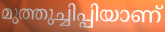
മുത്തുച്ചിപ്പിയാണ്